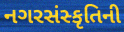
નગરસંસ્કૃતિની